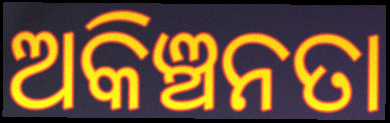
ଅକିଞ୍ଚନତା